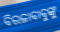
ବିରଜାବାବୁଙ୍କୁ